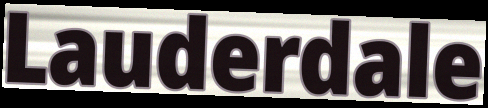
Lauderdale